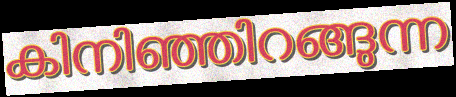
കിനിഞ്ഞിറങ്ങുന്ന